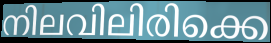
നിലവിലിരിക്കെ